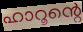
ഹാറൂന്റെ